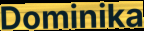
Dominika